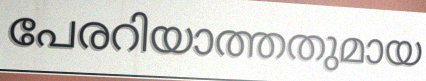
പേരറിയാത്തതുമായ